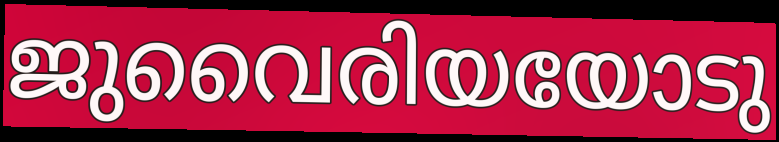
ജുവൈരിയയോടു